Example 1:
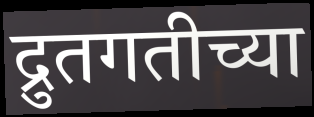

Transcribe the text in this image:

द्रुतगतीच्या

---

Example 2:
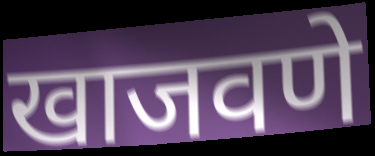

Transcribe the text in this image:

खाजवणे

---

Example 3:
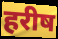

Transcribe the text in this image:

हरीष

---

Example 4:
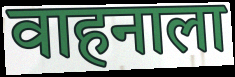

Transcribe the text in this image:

वाहनाला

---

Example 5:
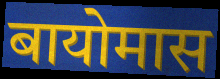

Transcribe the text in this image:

बायोमास